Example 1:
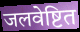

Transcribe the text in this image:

जलवेष्टित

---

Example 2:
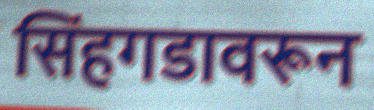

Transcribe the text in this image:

सिंहगडावरून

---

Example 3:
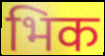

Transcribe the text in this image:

भिक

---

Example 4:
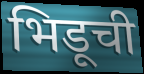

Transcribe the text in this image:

भिडूची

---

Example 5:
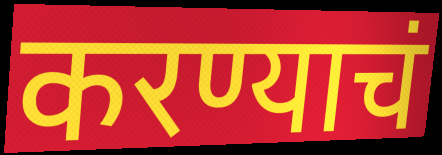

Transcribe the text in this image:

करण्याचं